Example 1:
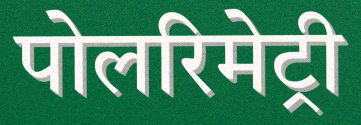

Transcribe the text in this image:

पोलरिमेट्री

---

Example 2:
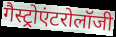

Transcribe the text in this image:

गैस्ट्रोएंटरोलॉजी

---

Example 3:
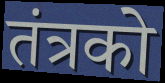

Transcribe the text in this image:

तंत्रको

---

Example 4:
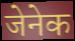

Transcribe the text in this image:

जेनेक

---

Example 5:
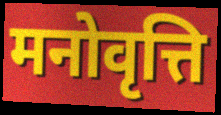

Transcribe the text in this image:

मनोवृत्ति